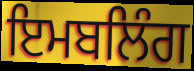
ਇਮਬਲਿੰਗ